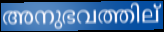
അനുഭവത്തില്